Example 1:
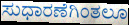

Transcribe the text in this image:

ಸುಧಾರಣೆಗಿಂತಲೂ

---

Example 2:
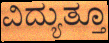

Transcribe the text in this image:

ವಿದ್ಯುತ್ತೂ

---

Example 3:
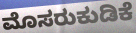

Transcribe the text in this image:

ಮೊಸರುಕುಡಿಕೆ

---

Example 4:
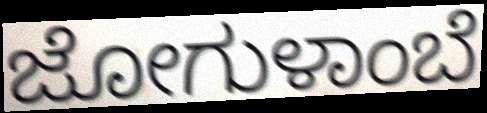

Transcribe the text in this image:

ಜೋಗುಳಾಂಬೆ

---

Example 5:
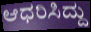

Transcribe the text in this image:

ಆಧರಿಸಿದ್ದು